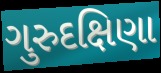
ગુરુદક્ષિણા